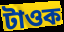
টাওক